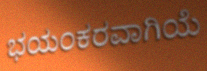
ಭಯಂಕರವಾಗಿಯೆ